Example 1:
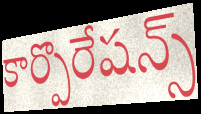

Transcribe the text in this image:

కార్పొరేషన్స్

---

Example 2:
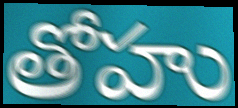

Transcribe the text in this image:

తోహు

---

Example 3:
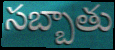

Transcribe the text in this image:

సబ్బాతు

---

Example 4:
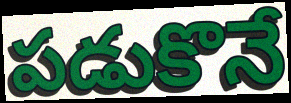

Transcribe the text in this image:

పడుకొనే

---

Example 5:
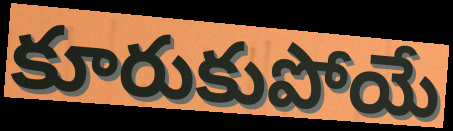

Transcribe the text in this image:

కూరుకుపోయే